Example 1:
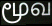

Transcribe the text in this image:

மூவ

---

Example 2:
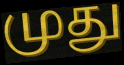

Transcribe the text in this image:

முது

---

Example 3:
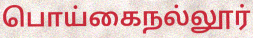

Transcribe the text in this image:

பொய்கைநல்லூர்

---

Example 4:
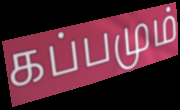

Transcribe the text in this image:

கப்பமும்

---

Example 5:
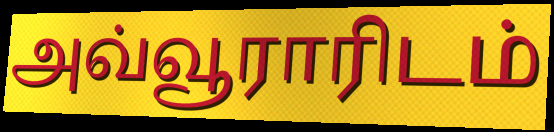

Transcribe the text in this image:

அவ்வூராரிடம்